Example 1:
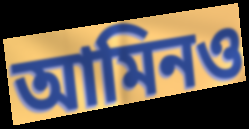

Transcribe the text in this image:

আমিনও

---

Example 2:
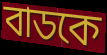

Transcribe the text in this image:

বাডকে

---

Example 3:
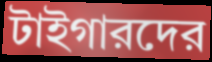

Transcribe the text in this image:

টাইগারদের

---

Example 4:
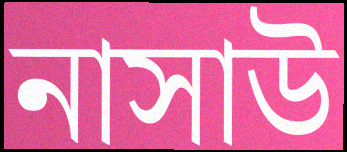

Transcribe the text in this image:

নাসাউ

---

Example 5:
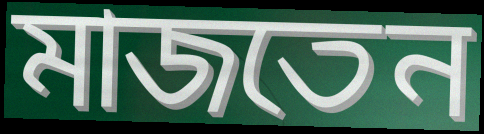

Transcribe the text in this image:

মাজতেন